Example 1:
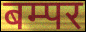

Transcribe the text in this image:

बम्पर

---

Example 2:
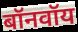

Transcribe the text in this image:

बॉनवॉय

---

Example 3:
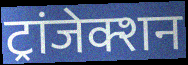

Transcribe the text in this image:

ट्रांजेक्शन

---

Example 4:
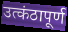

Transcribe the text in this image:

उत्कंठापूर्ण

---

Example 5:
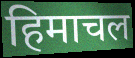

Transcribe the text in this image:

हिमाचल